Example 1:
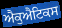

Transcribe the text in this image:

ਐਕੁਐਟਿਕਸ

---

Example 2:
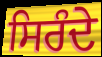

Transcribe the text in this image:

ਸਿਰੰਦੇ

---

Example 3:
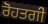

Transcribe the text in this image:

ਰੋਹਤਗੀ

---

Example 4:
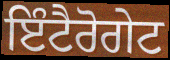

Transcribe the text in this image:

ਇੰਟੈਰੋਗੇਟ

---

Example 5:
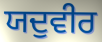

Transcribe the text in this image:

ਯਦੁਵੀਰ